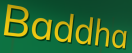
Baddha